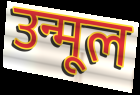
उन्मूल